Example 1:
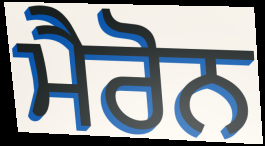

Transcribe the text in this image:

ਮੈਰੋਨ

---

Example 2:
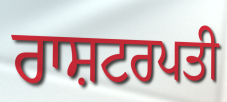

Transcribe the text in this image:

ਰਾਸ਼ਟਰਪਤੀ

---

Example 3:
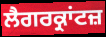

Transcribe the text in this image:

ਲੈਗਰਕ੍ਰਾਂਟਜ਼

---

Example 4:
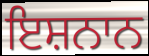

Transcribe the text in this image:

ਇਸ਼ਨਾਨ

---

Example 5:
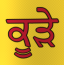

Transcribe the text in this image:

ਕੂੜੇ